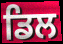
ਡਿਲ